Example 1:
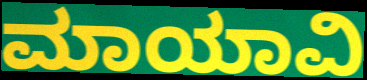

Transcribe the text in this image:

ಮಾಯಾವಿ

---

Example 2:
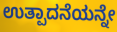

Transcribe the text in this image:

ಉತ್ಪಾದನೆಯನ್ನೇ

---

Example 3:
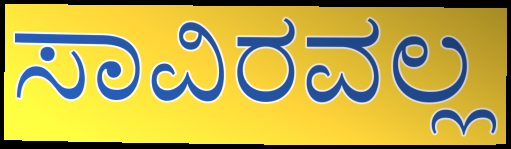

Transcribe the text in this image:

ಸಾವಿರವಲ್ಲ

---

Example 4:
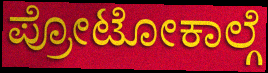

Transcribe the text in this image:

ಪ್ರೋಟೋಕಾಲ್ಗೆ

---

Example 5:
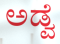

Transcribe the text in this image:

ಅಡ್ವೆ